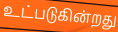
உட்படுகின்றது